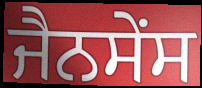
ਜੈਨਸੇਂਸ